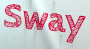
Sway